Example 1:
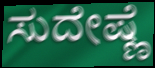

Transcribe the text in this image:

ಸುದೇಷ್ಣೆ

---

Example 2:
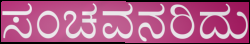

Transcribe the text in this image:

ಸಂಚವನರಿದು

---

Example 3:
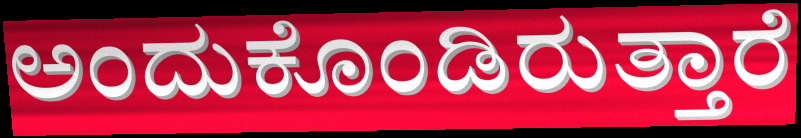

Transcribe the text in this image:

ಅಂದುಕೊಂಡಿರುತ್ತಾರೆ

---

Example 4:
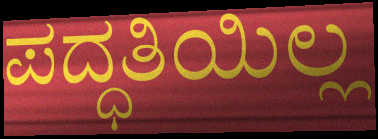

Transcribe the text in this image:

ಪದ್ಧತಿಯಿಲ್ಲ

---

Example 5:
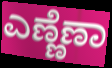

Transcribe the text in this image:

ಎಣ್ಣೆಣಾ